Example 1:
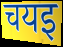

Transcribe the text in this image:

चयइ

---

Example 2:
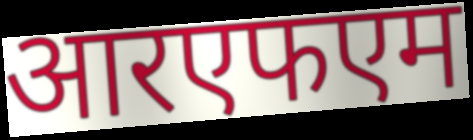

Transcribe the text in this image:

आरएफएम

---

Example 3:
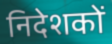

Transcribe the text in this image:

निदेशकों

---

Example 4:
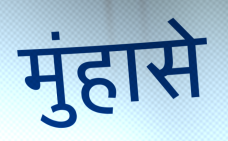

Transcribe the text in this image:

मुंहासे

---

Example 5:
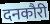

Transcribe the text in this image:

दनकौरी